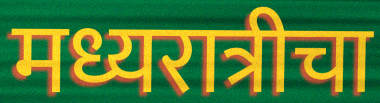
मध्यरात्रीचा